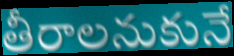
తీరాలనుకునే